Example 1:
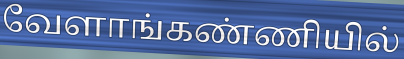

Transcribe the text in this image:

வேளாங்கண்ணியில்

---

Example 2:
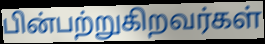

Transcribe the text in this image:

பின்பற்றுகிறவர்கள்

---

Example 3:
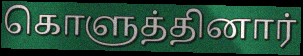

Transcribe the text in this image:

கொளுத்தினார்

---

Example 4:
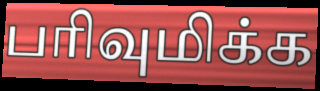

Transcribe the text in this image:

பரிவுமிக்க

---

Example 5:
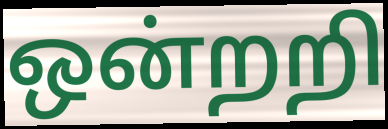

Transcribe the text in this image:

ஒன்றறி